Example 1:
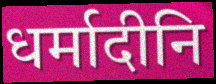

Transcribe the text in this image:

धर्मादीनि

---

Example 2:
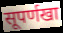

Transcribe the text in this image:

सूपर्णखा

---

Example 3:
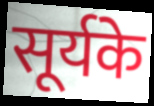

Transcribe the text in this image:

सूर्यके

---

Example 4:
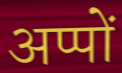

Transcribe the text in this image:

अप्पों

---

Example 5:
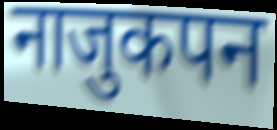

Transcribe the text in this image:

नाजुकपन